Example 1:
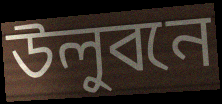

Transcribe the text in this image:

উলুবনে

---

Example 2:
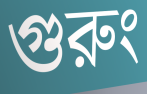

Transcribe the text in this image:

গুরুং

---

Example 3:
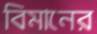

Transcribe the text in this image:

বিমানের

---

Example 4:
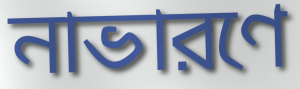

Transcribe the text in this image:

নাভারণে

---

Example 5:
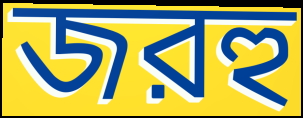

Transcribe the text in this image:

জরহু